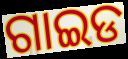
ଗାଇଡ